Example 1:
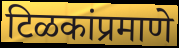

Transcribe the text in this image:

टिळकांप्रमाणे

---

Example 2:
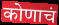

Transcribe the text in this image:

कोणाचं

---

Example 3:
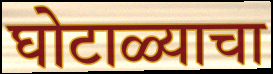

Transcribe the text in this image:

घोटाळ्याचा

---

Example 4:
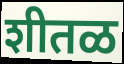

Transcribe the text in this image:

शीतळ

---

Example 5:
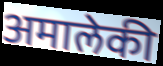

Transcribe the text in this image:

अमालेकी